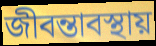
জীবন্তাবস্থায়